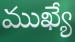
ముఖ్యే